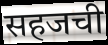
सहजची